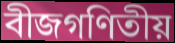
বীজগণিতীয়